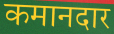
कमानदार